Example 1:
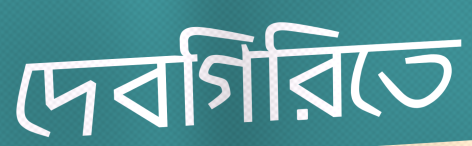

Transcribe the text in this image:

দেবগিরিতে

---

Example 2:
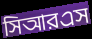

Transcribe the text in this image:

সিআরএস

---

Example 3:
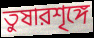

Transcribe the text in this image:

তুষারশৃঙ্গে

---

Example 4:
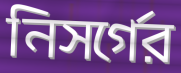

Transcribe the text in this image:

নিসর্গের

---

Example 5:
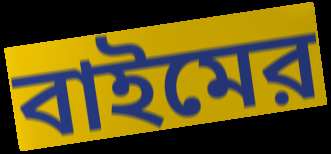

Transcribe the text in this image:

বাইমের